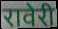
रावेरी